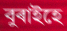
বুৰাইহে